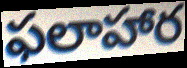
ఫలాహార